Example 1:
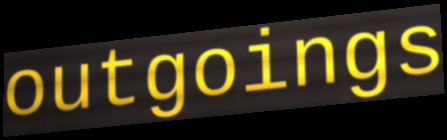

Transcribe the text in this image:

outgoings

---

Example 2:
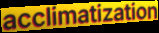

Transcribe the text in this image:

acclimatization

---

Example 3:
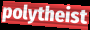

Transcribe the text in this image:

polytheist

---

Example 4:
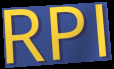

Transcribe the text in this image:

RPI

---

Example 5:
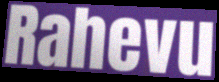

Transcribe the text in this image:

Rahevu